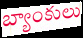
బ్యాంకులు